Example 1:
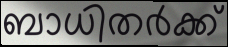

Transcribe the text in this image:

ബാധിതർക്ക്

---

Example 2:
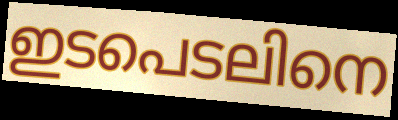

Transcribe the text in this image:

ഇടപെടലിനെ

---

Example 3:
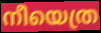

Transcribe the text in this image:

നീയെത്ര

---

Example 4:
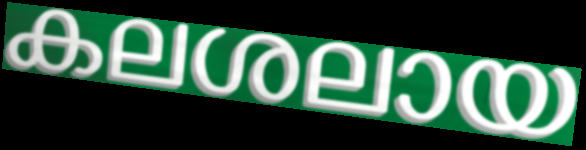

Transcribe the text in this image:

കലശലായ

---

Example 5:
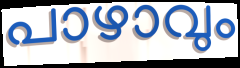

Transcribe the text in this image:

പാഴാവും